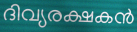
ദിവ്യരക്ഷകൻ